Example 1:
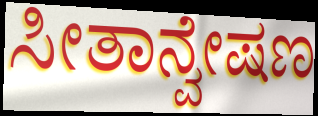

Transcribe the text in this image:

ಸೀತಾನ್ವೇಷಣ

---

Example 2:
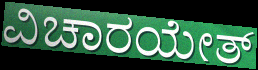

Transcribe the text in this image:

ವಿಚಾರಯೇತ್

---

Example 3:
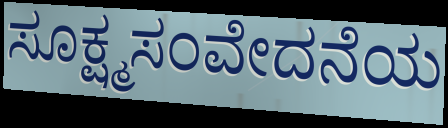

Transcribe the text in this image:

ಸೂಕ್ಷ್ಮಸಂವೇದನೆಯ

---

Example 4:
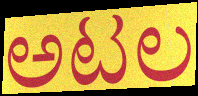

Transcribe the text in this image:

ಅಟಲ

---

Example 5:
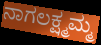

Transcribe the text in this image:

ನಾಗಲಕ್ಷ್ಮಮ್ಮ